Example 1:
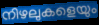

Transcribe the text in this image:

നിഴലുകളെയും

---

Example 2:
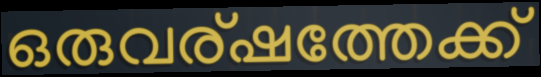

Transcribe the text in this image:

ഒരുവര്ഷത്തേക്ക്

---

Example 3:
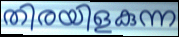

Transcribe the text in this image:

തിരയിളകുന്ന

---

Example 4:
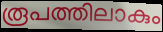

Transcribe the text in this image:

രൂപത്തിലാകും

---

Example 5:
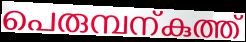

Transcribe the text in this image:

പെരുമ്പന്കുത്ത്